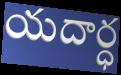
యదార్ధ